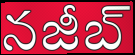
నజీబ్